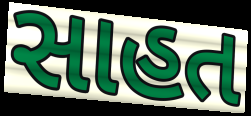
સાહત